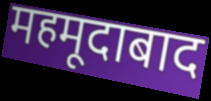
महमूदाबाद